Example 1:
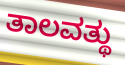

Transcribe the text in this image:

ತಾಲವತ್ಥು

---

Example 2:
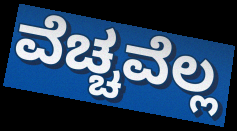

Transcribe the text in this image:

ವೆಚ್ಚವೆಲ್ಲ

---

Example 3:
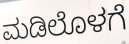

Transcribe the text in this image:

ಮಡಿಲೊಳಗೆ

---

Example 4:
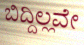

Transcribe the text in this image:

ಬಿದ್ದಿಲ್ಲವೇ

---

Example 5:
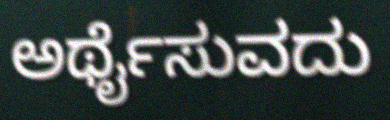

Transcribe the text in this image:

ಅರ್ಥೈಸುವದು